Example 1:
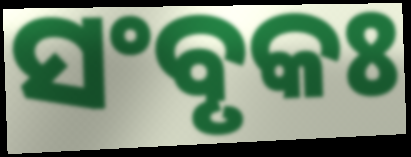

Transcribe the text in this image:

ସଂବୃକଃ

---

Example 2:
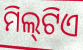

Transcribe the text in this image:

ମିଲ୍‌ଟିଏ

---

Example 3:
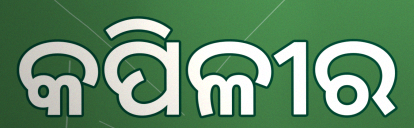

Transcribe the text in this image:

କପିଳୀର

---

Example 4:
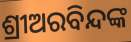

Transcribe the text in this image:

ଶ୍ରୀଅରବିନ୍ଦଙ୍କ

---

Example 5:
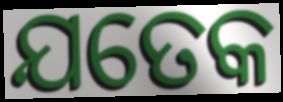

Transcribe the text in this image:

ଯତେକ